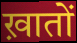
ख़ातों